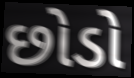
છોડો